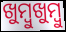
ଖୁମ୍ୱୁଖୁମ୍ବୁ